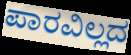
ಪಾರವಿಲ್ಲದ